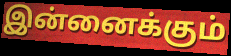
இன்னைக்கும்